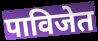
पाविजेत